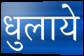
धुलाये